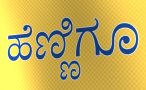
ಹೆಣ್ಣಿಗೂ